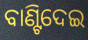
ବାଣ୍ଟିଦେଇ